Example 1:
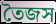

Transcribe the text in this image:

তৈজস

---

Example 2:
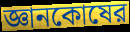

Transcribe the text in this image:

জ্ঞানকোষের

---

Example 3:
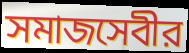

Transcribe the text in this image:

সমাজসেবীর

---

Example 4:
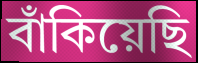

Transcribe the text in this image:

বাঁকিয়েছি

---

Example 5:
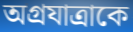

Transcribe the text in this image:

অগ্রযাত্রাকে